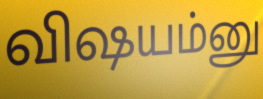
விஷயம்னு